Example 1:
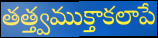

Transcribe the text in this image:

తత్త్వముక్తాకలాపే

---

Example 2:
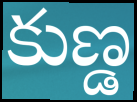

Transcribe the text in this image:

కుణ్డ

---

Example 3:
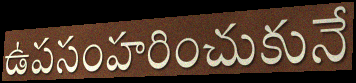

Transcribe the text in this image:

ఉపసంహరించుకునే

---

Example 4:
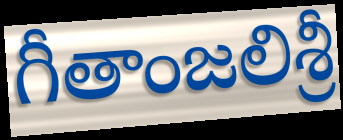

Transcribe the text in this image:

గీతాంజలిశ్రీ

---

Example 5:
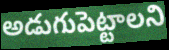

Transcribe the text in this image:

అడుగుపెట్టాలని